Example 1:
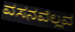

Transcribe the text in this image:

ವಸನವೆಲ್ಲವ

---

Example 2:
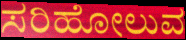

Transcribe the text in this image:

ಸರಿಹೋಲುವ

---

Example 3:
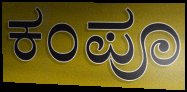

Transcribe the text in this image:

ಕಂಪೂ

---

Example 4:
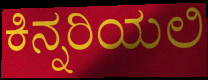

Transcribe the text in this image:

ಕಿನ್ನರಿಯಲಿ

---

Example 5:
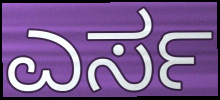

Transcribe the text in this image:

ಎರ್ಸ